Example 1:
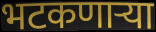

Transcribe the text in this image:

भटकणार्‍या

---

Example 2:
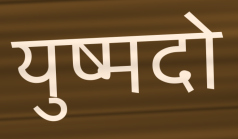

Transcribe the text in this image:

युष्मदो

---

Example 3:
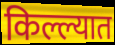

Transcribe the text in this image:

किल्ल्यात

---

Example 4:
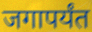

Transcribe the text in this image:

जगापर्यंत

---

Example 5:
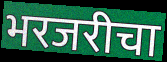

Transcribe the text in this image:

भरजरीचा